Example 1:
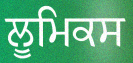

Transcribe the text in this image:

ਲੂਮਿਕਸ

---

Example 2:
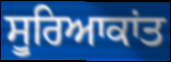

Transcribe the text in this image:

ਸੂਰਿਆਕਾਂਤ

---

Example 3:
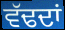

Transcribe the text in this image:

ਵੱਢਦਾਂ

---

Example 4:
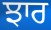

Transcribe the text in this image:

ਝਾਰ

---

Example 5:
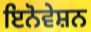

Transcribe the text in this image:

ਇਨੋਵੇਸ਼ਨ